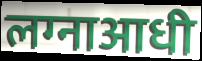
लग्नाआधी